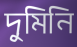
দুমিনি